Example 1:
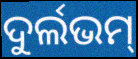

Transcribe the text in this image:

ଦୁର୍ଲଭମ୍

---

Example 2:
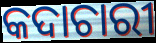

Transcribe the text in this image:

କଦାଚାରୀ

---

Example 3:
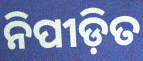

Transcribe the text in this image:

ନିପୀଡ଼ିତ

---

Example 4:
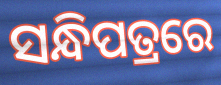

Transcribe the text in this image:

ସନ୍ଧିପତ୍ରରେ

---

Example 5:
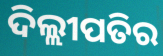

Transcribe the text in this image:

ଦିଲ୍ଲୀପତିର